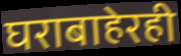
घराबाहेरही